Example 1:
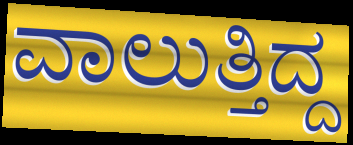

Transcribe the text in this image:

ವಾಲುತ್ತಿದ್ದ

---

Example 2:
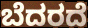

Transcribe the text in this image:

ಬೆದರದೆ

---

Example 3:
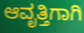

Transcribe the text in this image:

ಆವೃತ್ತಿಗಾಗಿ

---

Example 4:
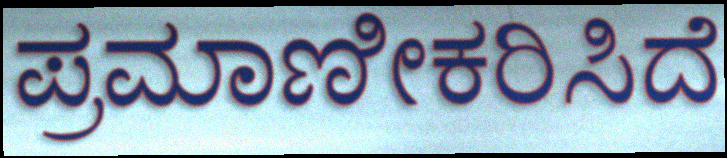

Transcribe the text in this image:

ಪ್ರಮಾಣೀಕರಿಸಿದೆ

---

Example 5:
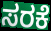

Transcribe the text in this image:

ಸರಕೆ